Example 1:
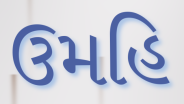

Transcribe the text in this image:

ઉમહિ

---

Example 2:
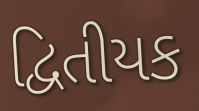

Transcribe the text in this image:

દ્વિતીયક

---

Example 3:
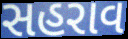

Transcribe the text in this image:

સહરાવ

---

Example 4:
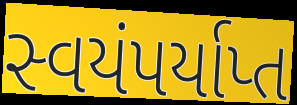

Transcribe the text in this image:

સ્વયંપર્યાપ્ત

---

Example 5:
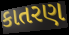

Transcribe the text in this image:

કાતરણ